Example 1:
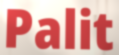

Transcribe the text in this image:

Palit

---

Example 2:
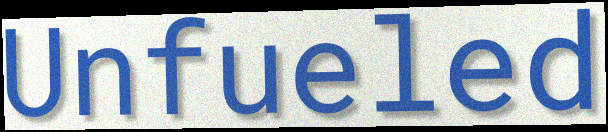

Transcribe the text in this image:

Unfueled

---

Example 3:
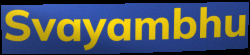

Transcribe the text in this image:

Svayambhu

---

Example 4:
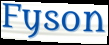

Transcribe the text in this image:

Fyson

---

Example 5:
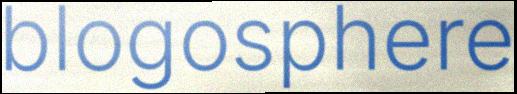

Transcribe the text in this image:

blogosphere